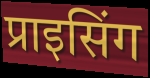
प्राइसिंग